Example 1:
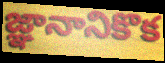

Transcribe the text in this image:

జ్ఞానానికొక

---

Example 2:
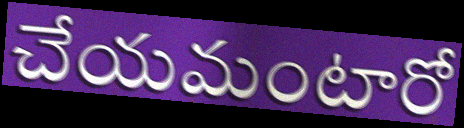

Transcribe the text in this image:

చేయమంటారో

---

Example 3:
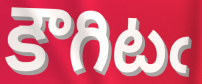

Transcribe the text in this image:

కౌగిటఁ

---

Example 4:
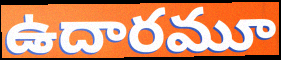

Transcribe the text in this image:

ఉదారమూ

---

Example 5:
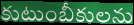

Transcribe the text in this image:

కుటుంబీకులను